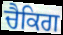
ਚੈਕਿਗ